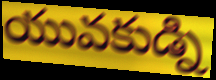
యువకుడ్ని